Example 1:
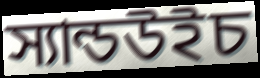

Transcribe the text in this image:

স্যান্ডউইচ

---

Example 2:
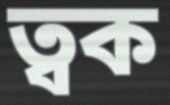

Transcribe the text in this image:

ত্বক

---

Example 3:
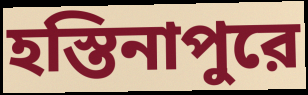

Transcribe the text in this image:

হস্তিনাপুরে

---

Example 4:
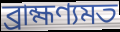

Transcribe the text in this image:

ব্রাহ্মণ্যমত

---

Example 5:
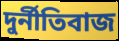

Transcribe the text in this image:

দুর্নীতিবাজ